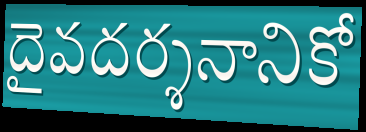
దైవదర్శనానికో